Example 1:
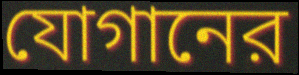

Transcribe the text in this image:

যোগানের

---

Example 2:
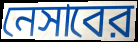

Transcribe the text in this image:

নেসাবের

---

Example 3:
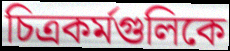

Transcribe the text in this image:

চিত্রকর্মগুলিকে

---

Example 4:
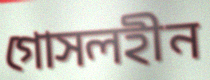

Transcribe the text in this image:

গোসলহীন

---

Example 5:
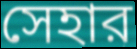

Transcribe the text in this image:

সেহার